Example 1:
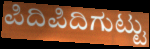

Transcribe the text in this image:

ಪಿದಿಪಿದಿಗುಟ್ಟು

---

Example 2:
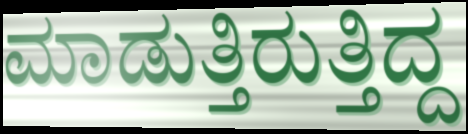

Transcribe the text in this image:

ಮಾಡುತ್ತಿರುತ್ತಿದ್ದ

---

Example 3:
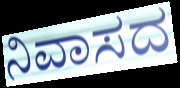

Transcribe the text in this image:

ನಿವಾಸದ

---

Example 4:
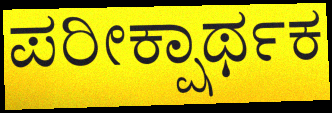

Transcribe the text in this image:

ಪರೀಕ್ಷಾರ್ಥಕ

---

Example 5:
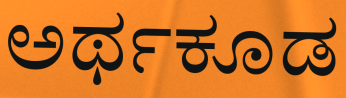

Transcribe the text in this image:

ಅರ್ಥಕೂಡ